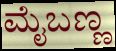
ಮೈಬಣ್ಣ